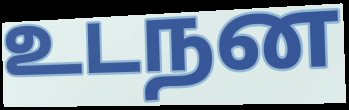
உடநன